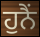
ਹੁਨੈਂ